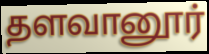
தளவானூர்